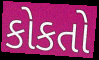
કોકતો